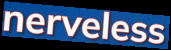
nerveless